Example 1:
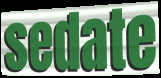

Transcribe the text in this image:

sedate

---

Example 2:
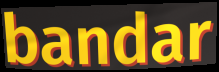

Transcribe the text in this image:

bandar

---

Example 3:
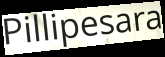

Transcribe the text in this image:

Pillipesara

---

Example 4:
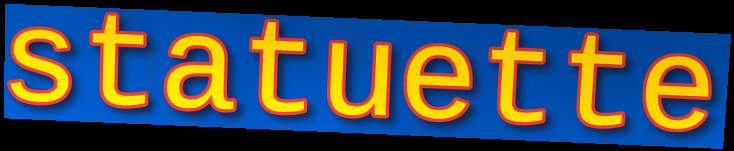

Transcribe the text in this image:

statuette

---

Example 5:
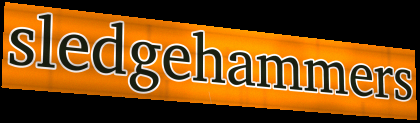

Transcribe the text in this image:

sledgehammers